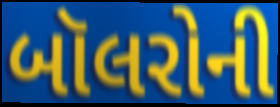
બૉલરોની